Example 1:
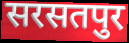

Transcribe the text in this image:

सरसतपुर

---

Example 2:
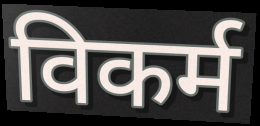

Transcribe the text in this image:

विकर्म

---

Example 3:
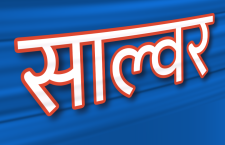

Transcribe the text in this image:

साल्वर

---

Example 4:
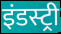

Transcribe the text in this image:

इंडस्‍ट्री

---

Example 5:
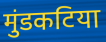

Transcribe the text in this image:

मुंडकटिया